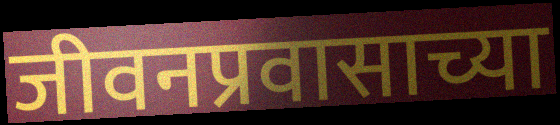
जीवनप्रवासाच्या